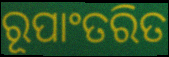
ରୂପାଂତରିତ